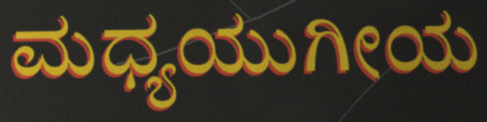
ಮಧ್ಯಯುಗೀಯ